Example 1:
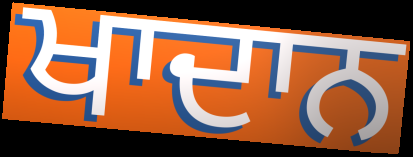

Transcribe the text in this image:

ਖਾਦਾਨ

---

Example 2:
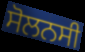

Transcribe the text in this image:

ਸੋਲਨਸੀ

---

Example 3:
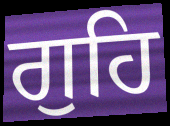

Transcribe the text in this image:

ਗੁਹਿ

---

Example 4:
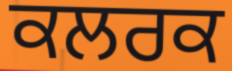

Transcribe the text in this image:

ਕਲਰਕ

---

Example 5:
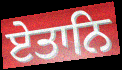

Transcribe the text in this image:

ਏਤਾਨਿ